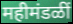
महीमंडळीं